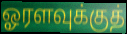
ஓரளவுக்குத்